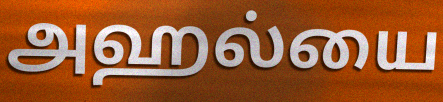
அஹல்யை